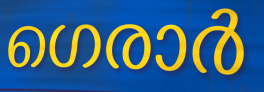
ഗെരാർ